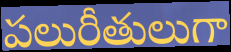
పలురీతులుగా